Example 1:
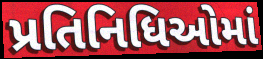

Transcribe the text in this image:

પ્રતિનિધિઓમાં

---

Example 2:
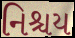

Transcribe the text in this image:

નિશ્ચય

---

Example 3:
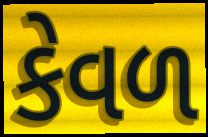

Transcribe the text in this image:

કેવળ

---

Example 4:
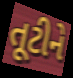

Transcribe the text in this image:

તૂટીને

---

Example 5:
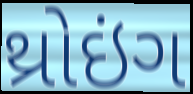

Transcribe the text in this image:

થ્રોઇંગ